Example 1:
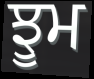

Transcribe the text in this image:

ਝੂਮ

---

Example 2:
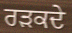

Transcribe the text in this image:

ਰੜਕਦੇ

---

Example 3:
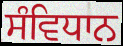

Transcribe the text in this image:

ਸੰਵਿਧਾਨ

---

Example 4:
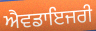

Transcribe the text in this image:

ਐਵਡਾਇਜਰੀ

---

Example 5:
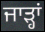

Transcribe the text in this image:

ਜਾੜ੍ਹਾਂ